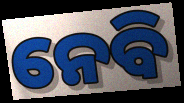
ନେବି